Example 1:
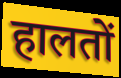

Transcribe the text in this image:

हालतों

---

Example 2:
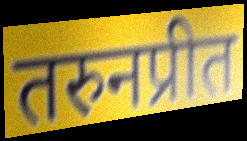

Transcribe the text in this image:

तरुनप्रीत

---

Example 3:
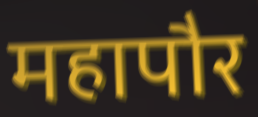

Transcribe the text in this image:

महापौर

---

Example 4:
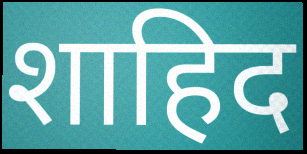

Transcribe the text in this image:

शाहिद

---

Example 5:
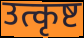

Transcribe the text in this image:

उत्कृष्ट